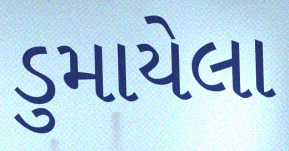
ડુમાયેલા